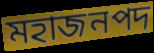
মহাজনপদ